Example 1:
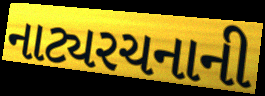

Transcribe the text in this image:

નાટ્યરચનાની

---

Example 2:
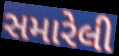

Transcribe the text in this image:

સમારેલી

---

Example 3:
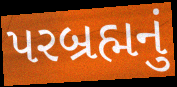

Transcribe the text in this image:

પરબ્રહ્મનું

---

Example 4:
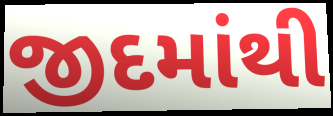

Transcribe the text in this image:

જીદમાંથી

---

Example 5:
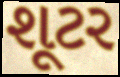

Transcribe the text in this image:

શૂટર